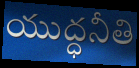
యుద్ధనీతి